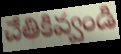
చేతికివ్వండి